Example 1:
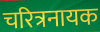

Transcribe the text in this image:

चरित्रनायक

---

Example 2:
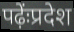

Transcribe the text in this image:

पढ़ेंःप्रदेश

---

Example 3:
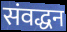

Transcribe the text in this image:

संवद्धन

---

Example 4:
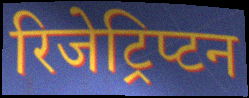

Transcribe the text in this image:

रिजेट्रिप्टन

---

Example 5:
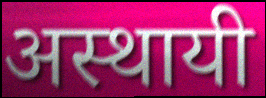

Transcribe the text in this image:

अस्थायी